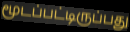
மூடப்பட்டிருப்பது